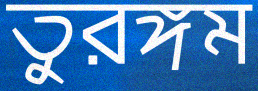
তুরঙ্গম